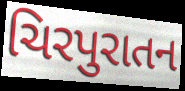
ચિરપુરાતન